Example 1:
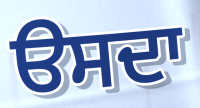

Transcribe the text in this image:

ੳਸਦਾ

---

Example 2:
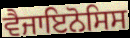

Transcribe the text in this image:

ਵੈਜਾਇਨੋਸਿਸ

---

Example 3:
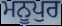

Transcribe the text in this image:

ਮਨੂਪੁਰ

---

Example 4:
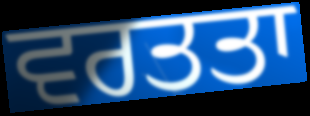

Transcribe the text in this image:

ਵਰਤਤਾ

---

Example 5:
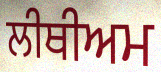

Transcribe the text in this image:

ਲੀਥੀਅਮ